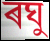
ৰঘু